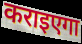
कराइएगा